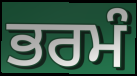
ਭਰਮੰ